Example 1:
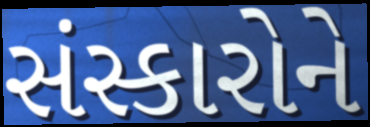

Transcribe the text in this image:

સંસ્કારોને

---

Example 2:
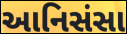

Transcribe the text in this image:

આનિસંસા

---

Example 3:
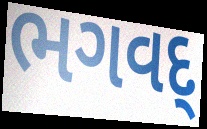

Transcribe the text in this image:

ભગવદ્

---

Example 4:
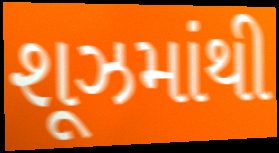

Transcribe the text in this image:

શૂઝમાંથી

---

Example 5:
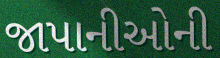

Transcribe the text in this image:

જાપાનીઓની